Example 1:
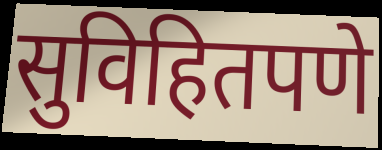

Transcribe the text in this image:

सुविहितपणे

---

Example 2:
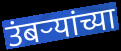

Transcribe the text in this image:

उंबऱ्यांच्या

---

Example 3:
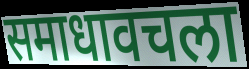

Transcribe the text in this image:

समाधावचला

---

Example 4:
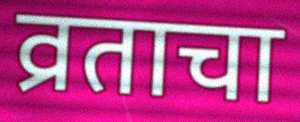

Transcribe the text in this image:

व्रताचा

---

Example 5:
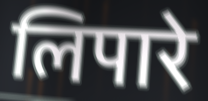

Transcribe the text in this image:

लिपारे